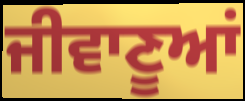
ਜੀਵਾਣੂਆਂ